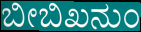
ಬೀಬಿಖನುಂ